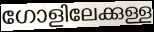
ഗോളിലേക്കുള്ള